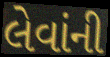
લેવાંની